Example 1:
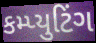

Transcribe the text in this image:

કમ્પ્યુટિંગ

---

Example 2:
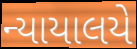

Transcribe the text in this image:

ન્યાયાલયે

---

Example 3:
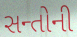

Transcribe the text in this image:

સન્તોની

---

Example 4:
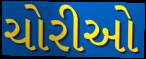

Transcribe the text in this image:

ચોરીઓ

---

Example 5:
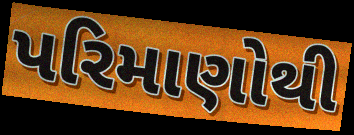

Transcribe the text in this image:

પરિમાણોથી